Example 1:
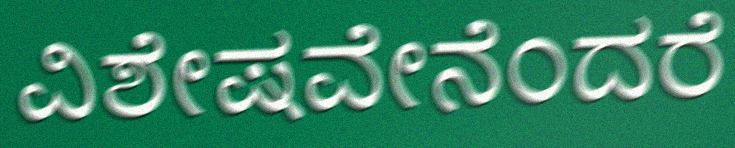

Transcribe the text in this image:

ವಿಶೇಷವೇನೆಂದರೆ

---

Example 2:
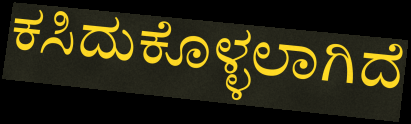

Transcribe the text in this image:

ಕಸಿದುಕೊಳ್ಳಲಾಗಿದೆ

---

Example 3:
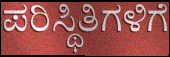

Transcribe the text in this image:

ಪರಿಸ್ಥಿತಿಗಳಿಗೆ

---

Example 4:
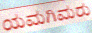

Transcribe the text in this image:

ಯಮಗಿಮರು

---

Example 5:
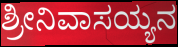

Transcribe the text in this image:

ಶ್ರೀನಿವಾಸಯ್ಯನ